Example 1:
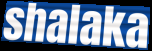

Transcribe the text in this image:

shalaka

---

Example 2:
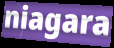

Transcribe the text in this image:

niagara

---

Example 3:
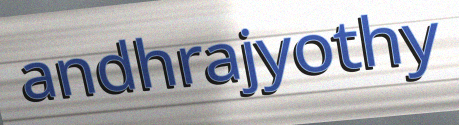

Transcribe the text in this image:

andhrajyothy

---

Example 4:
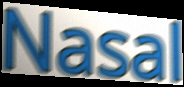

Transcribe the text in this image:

Nasal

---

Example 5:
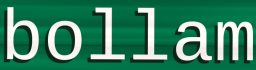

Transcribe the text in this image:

bollam